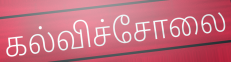
கல்விச்சோலை